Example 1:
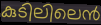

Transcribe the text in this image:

കുടിലിലെൻ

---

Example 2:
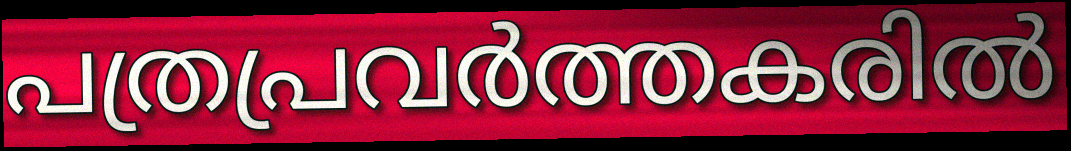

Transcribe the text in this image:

പത്രപ്രവർത്തകരിൽ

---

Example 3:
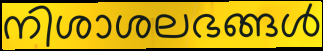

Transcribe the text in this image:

നിശാശലഭങ്ങൾ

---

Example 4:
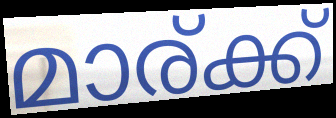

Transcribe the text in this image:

മാര്ക്ക്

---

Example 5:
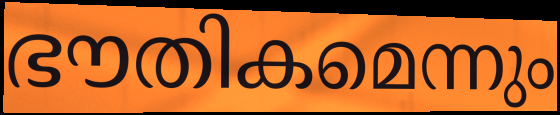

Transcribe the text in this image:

ഭൗതികമെന്നും